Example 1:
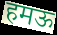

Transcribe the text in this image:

हमऊ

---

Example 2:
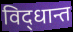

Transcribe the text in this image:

विद्धान्त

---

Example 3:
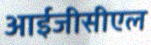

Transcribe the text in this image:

आईजीसीएल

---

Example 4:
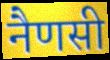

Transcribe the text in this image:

नैणसी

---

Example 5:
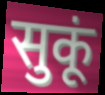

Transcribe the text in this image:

सुकूं